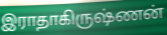
இராதாகிருஷ்ணன்